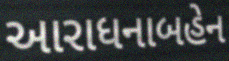
આરાધનાબહેન